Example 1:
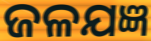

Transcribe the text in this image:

ଜଳଯଜ୍ଞ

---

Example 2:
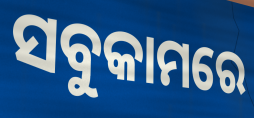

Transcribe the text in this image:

ସବୁକାମରେ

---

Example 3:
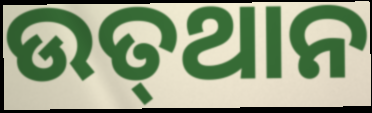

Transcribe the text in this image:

ଉତ୍‍ଥାନ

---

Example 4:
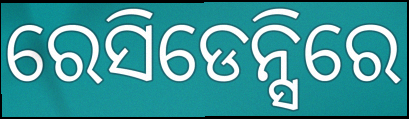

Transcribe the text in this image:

ରେସିଡେନ୍ସିରେ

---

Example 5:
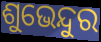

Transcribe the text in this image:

ଶୁଭେନ୍ଦୁର